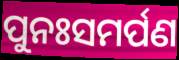
ପୁନଃସମର୍ପଣ